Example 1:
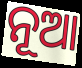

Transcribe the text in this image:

ନୂଆ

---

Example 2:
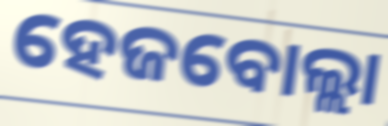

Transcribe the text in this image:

ହେଜବୋଲ୍ଲା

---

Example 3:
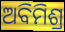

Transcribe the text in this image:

ଅବିମିଶ୍ର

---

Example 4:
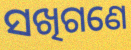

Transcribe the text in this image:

ସଖିଗଣେ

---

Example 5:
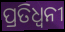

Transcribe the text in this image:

ପ୍ରତିଧ୍ଵନୀ